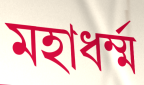
মহাধর্ম্ম